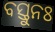
ବସ୍ତୁନଃ